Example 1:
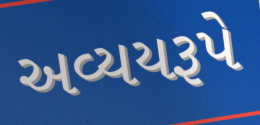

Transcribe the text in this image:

અવ્યયરૂપે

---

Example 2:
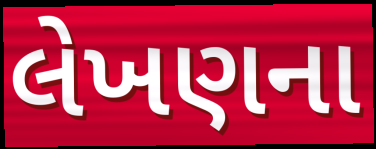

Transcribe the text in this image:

લેખણના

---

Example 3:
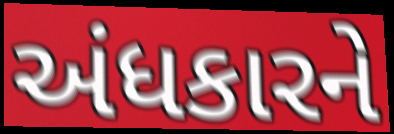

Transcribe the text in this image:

અંધકારને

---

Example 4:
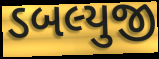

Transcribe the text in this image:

ડબલ્યુજી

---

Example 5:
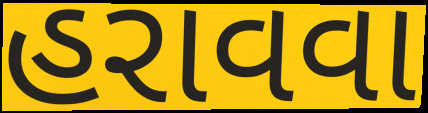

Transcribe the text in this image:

હરાવવા